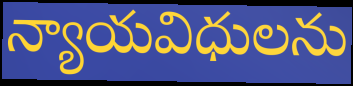
న్యాయవిధులను